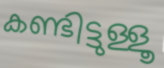
കണ്ടിട്ടുള്ളൂ